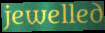
jewelled